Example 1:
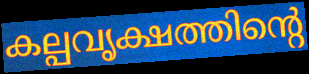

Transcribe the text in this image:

കല്പവൃക്ഷത്തിന്റെ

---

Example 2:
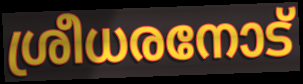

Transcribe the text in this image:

ശ്രീധരനോട്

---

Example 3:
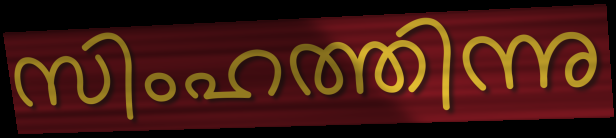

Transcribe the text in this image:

സിംഹത്തിന്നു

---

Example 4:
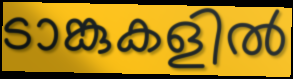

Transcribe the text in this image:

ടാങ്കുകളിൽ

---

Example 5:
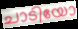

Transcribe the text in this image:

ചാടിയോ